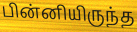
பின்னியிருந்த